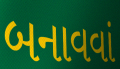
બનાવવાં